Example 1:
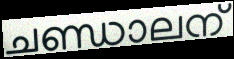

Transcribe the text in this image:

ചണ്ഡാലന്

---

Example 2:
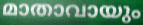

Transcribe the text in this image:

മാതാവായും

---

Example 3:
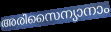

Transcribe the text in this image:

അരിസൈന്യാനാം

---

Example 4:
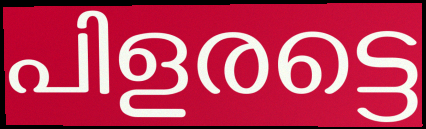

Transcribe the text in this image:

പിളരട്ടെ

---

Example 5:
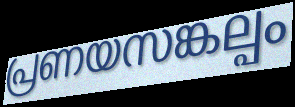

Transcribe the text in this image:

പ്രണയസങ്കല്പം